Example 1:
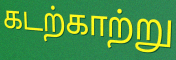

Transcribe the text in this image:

கடற்காற்று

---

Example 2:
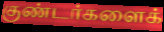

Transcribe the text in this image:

குண்டர்களைக்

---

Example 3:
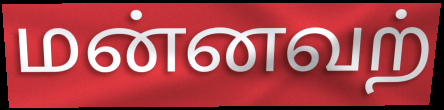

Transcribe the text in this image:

மன்னவற்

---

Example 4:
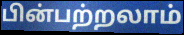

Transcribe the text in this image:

பின்பற்றலாம்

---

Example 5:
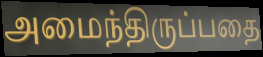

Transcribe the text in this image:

அமைந்திருப்பதை